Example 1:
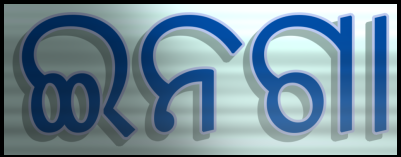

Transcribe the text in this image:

ଇନଗା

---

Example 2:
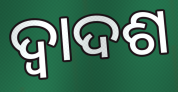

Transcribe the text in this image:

ଦ୍ୱାଦଶ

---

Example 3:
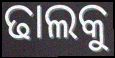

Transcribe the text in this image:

ଢାଲକୁ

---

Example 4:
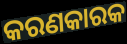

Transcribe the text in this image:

କରଣକାରକ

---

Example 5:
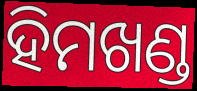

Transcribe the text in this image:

ହିମଖଣ୍ଡ